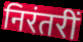
निरंतरीं